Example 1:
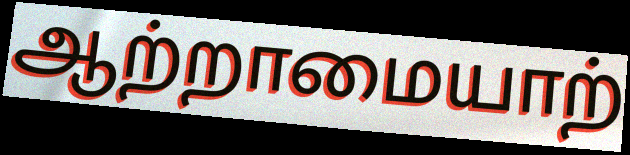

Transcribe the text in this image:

ஆற்றாமையாற்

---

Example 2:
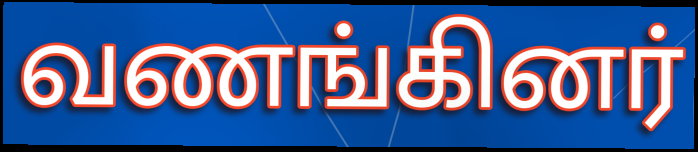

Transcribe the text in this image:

வணங்கினர்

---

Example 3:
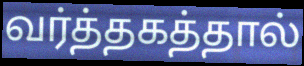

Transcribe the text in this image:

வர்த்தகத்தால்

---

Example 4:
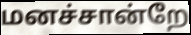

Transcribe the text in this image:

மனச்சான்றே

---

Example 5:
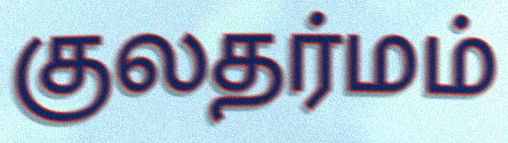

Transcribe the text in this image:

குலதர்மம்